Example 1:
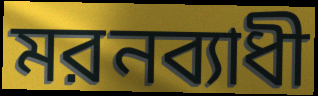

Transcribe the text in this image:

মরনব্যাধী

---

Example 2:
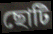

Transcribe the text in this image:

ছোটি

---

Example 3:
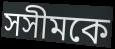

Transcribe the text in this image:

সসীমকে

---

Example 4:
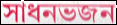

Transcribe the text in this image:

সাধনভজন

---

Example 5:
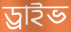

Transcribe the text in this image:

ড্রাইভ